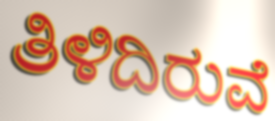
ತಿಳಿದಿರುವೆ